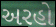
અરહો